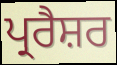
ਪ੍ਰਰੈਸ਼ਰ